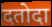
दतोदा